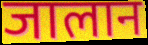
जालान